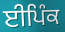
ਈਪਿੰਕ